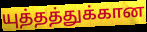
யுத்தத்துக்கான